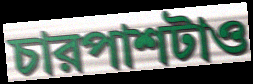
চারপাশটাও